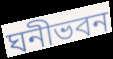
ঘনীভবন